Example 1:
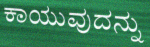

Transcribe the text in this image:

ಕಾಯುವುದನ್ನು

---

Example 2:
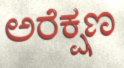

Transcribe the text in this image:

ಅರೆಕ್ಷಣ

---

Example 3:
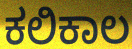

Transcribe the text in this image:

ಕಲಿಕಾಲ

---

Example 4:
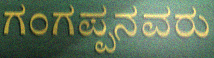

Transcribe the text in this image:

ಗಂಗಪ್ಪನವರು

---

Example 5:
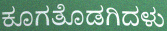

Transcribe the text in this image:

ಕೂಗತೊಡಗಿದಳು